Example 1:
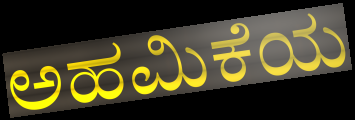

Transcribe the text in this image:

ಅಹಮಿಕೆಯ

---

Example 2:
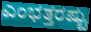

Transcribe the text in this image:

ಎಂಭತ್ತರಷ್ಟು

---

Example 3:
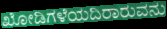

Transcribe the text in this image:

ಖೋಡಿಗಳೆಯದಿರಾರುವನು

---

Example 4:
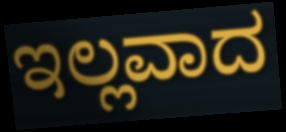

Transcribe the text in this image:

ಇಲ್ಲವಾದ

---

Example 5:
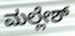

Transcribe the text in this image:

ಮಲ್ಲೇಶ್